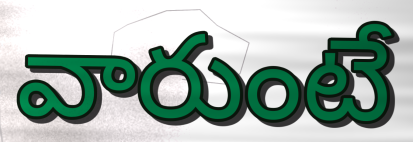
వారుంటే